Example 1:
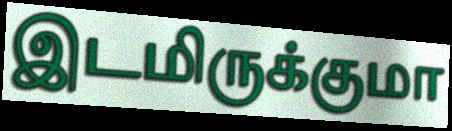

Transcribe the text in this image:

இடமிருக்குமா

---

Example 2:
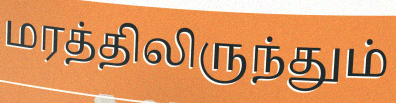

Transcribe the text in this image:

மரத்திலிருந்தும்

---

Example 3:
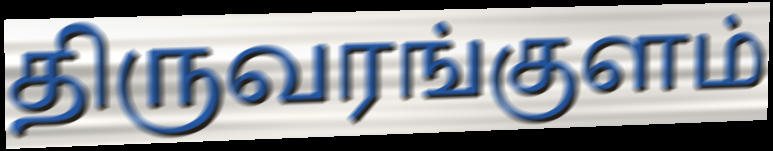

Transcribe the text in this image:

திருவரங்குளம்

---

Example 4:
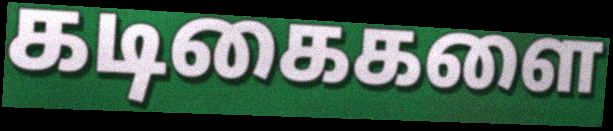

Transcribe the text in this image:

கடிகைகளை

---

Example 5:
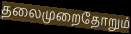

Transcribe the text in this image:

தலைமுறைதோறும்